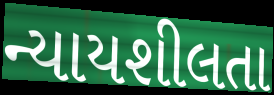
ન્યાયશીલતા